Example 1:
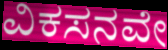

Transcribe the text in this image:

ವಿಕಸನವೇ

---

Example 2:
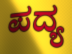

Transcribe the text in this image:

ಪದ್ಯ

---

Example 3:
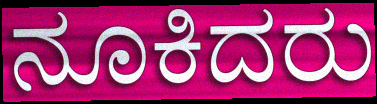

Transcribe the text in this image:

ನೂಕಿದರು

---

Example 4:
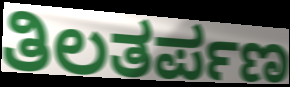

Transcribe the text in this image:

ತಿಲತರ್ಪಣ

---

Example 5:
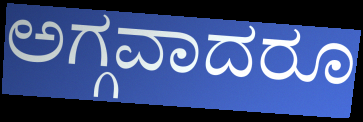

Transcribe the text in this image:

ಅಗ್ಗವಾದರೂ